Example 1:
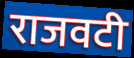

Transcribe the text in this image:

राजवटी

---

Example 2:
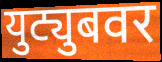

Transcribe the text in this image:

युट्युबवर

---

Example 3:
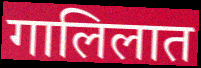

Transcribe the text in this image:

गालिलात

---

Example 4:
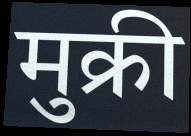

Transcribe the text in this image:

मुक्री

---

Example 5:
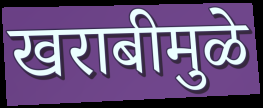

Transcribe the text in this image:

खराबीमुळे